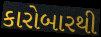
કારોબારથી